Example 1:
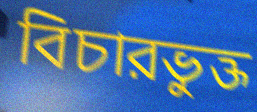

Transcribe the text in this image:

বিচারভুক্ত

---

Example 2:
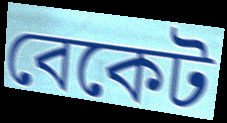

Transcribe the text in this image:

বেকেট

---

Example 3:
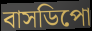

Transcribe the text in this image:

বাসডিপো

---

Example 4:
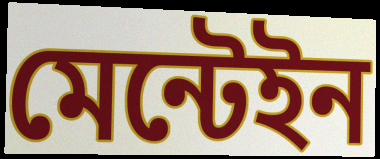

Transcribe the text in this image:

মেন্টেইন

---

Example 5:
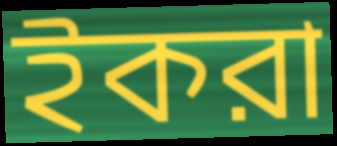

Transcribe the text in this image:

ইকরা